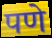
पणे